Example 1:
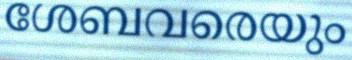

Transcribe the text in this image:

ശേബവരെയും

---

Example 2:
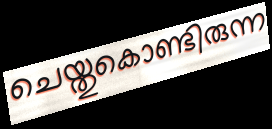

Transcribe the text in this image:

ചെയ്തുകൊണ്ടിരുന്ന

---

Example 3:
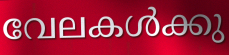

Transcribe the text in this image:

വേലകൾക്കു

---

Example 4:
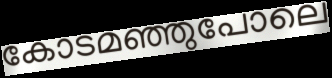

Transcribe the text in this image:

കോടമഞ്ഞുപോലെ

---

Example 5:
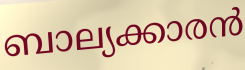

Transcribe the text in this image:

ബാല്യക്കാരൻ